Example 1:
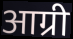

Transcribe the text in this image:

आग्री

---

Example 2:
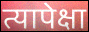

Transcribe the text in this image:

त्यापेक्षा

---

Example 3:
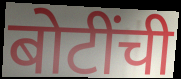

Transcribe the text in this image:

बोटींची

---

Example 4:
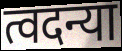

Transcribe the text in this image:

त्वदन्या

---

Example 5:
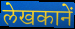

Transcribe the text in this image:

लेखकानें